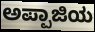
ಅಪ್ಪಾಜಿಯ